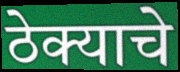
ठेक्याचे